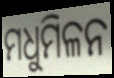
ମଧୁମିଳନ